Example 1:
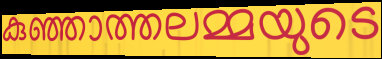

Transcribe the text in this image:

കുഞ്ഞാത്തലമ്മയുടെ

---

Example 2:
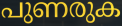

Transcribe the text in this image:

പുണരുക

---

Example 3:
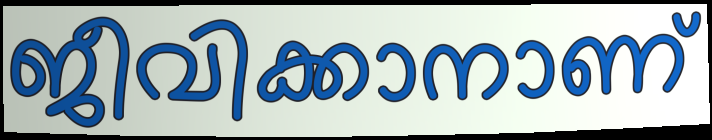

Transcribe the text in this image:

ജീവിക്കാനാണ്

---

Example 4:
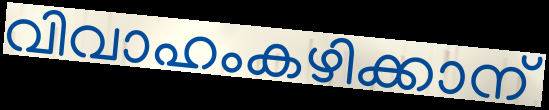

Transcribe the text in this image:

വിവാഹംകഴിക്കാന്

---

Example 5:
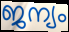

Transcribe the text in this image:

ജന്യം